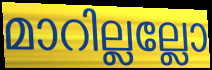
മാറില്ലല്ലോ